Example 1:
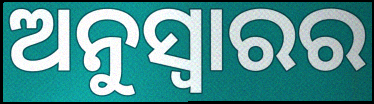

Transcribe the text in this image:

ଅନୁସ୍ଵାରର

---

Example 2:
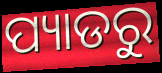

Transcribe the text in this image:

ପ୍ୟାଡରୁ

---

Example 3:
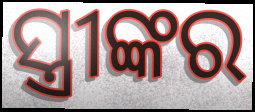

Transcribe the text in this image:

ସ୍ତ୍ରୀଙ୍କର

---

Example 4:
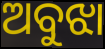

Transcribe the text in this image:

ଅବୁଝା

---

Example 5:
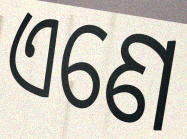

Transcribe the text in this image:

ଏଣେ